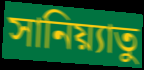
সানিয়্যাতু